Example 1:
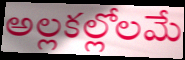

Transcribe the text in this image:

అల్లకల్లోలమే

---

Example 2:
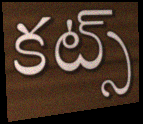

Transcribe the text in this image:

కట్స్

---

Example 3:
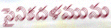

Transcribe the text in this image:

సైనికదళమును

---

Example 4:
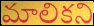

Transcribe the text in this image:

మాలికని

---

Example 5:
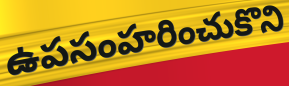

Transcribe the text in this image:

ఉపసంహరించుకొని